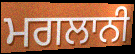
ਮਗਲਾਨੀ